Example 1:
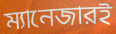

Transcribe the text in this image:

ম্যানেজারই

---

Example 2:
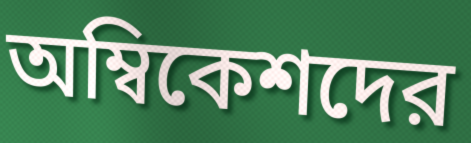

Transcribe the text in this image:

অম্বিকেশদের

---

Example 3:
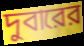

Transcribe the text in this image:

দুবারের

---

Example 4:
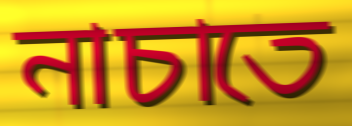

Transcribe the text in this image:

নাচাতে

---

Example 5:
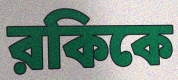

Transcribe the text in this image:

রকিকে